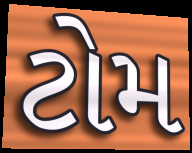
ટોમ